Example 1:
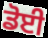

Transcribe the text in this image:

ਡੋਈ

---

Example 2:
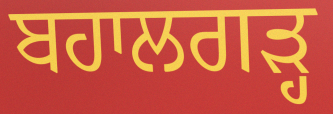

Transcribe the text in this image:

ਬਹਾਲਗੜ੍ਹ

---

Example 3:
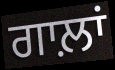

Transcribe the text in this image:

ਗਾਲ਼ਾਂ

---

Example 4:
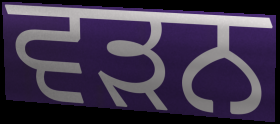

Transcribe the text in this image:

ਵੜਨ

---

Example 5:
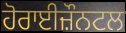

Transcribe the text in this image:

ਹੋਰਾਈਜ਼ੌਨਟਲ